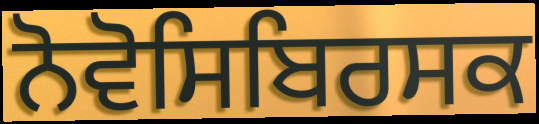
ਨੋਵੋਸਿਬਿਰਸਕ